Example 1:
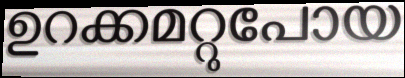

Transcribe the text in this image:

ഉറക്കമറ്റുപോയ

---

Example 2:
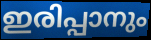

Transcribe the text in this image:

ഇരിപ്പാനും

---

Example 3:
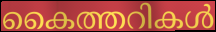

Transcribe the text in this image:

കൈത്തറികൾ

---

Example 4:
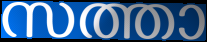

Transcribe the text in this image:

സത്താ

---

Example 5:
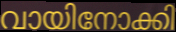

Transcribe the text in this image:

വായിനോക്കി